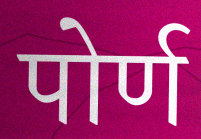
पोर्ण